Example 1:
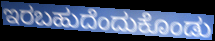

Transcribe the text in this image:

ಇರಬಹುದೆಂದುಕೊಂಡು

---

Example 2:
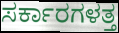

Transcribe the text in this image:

ಸರ್ಕಾರಗಳತ್ತ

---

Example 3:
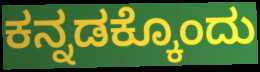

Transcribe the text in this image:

ಕನ್ನಡಕ್ಕೊಂದು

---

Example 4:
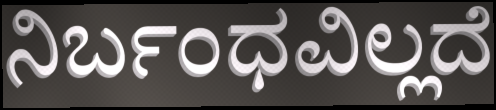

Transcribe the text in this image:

ನಿರ್ಬಂಧವಿಲ್ಲದೆ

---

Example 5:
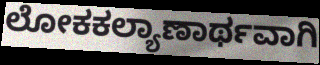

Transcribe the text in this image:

ಲೋಕಕಲ್ಯಾಣಾರ್ಥವಾಗಿ